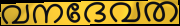
വനദേവത